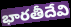
భారతీదేవి